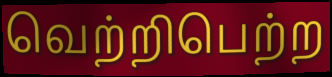
வெற்றிபெற்ற